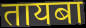
तायबा